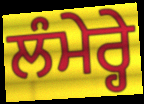
ਲੰਮੇਰ੍ਹੇ